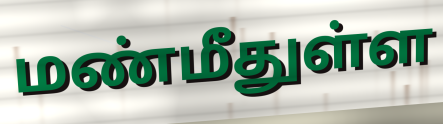
மண்மீதுள்ள